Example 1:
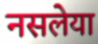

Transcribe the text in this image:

नसलेया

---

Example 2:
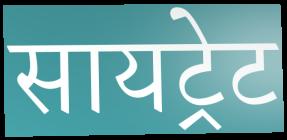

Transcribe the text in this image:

सायट्रेट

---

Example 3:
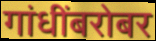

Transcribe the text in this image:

गांधींबरोबर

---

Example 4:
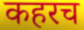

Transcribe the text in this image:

कहरच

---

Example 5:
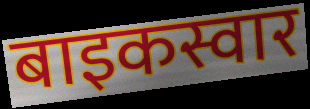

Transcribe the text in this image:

बाइकस्वार